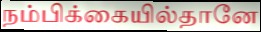
நம்பிக்கையில்தானே